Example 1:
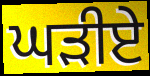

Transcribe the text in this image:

ਘੜੀਏ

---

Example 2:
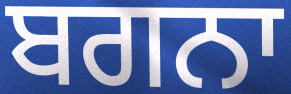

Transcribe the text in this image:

ਬਗਨਾ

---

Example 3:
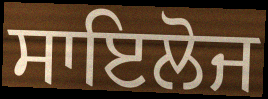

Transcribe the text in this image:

ਸਾਇਲੋਜ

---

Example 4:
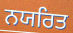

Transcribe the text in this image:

ਨਯਰਿਤ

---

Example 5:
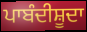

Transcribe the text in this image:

ਪਾਬੰਦੀਸ਼ੂਦਾ